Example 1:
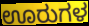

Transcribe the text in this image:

ಊರುಗಳ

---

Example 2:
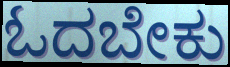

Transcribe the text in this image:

ಓದಬೇಕು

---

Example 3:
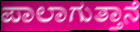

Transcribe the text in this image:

ಪಾಲಾಗುತ್ತಾನೆ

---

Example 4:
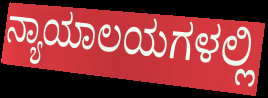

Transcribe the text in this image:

ನ್ಯಾಯಾಲಯಗಳಲ್ಲಿ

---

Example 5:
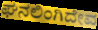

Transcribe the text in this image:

ಘನಲಿಂಗಿದೇವ